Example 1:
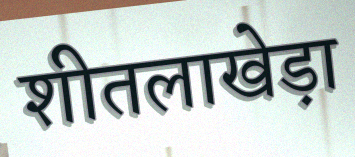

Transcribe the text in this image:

शीतलाखेड़ा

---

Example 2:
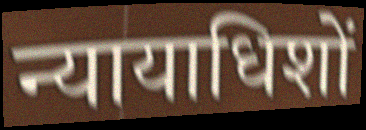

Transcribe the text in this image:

न्यायाधिशों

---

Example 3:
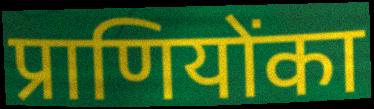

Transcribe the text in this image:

प्राणियोंका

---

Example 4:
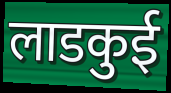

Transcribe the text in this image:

लाडकुई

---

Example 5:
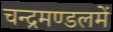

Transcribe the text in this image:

चन्द्रमण्डलमें